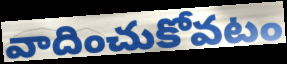
వాదించుకోవటం